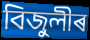
বিজুলীৰ